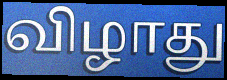
விழாது